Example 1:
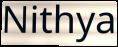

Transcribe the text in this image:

Nithya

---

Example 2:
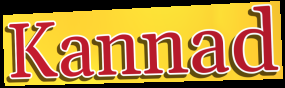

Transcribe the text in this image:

Kannad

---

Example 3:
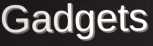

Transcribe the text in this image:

Gadgets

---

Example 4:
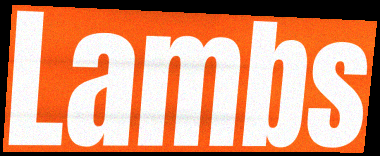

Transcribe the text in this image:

Lambs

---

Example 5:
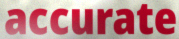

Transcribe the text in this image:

accurate